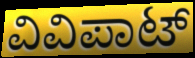
ವಿವಿಪಾಟ್